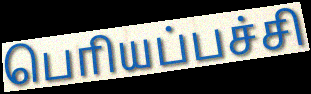
பெரியப்பச்சி